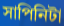
সাপিনিটা